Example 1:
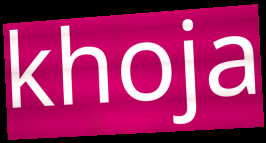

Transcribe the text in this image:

khoja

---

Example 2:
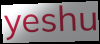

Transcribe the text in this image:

yeshu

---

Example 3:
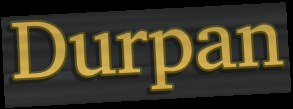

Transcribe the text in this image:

Durpan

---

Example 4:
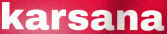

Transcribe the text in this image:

karsana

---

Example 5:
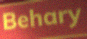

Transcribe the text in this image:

Behary